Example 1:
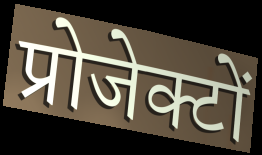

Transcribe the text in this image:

प्रोजेक्टों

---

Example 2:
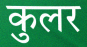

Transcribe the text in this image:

कुलर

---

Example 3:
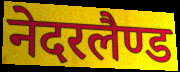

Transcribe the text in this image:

नेदरलैण्ड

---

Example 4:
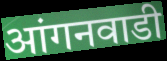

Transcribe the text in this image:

आंगनवाडी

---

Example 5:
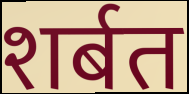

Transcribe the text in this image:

शर्बत